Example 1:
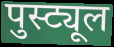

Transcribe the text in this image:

पुस्ट्यूल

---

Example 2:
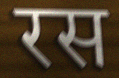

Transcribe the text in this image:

रस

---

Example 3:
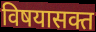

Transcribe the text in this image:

विषयासक्त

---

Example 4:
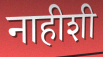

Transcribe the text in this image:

नाहीशी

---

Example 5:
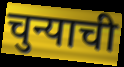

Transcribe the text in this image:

चुन्याची